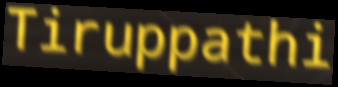
Tiruppathi